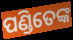
ପଣ୍ଡିତେଙ୍କ